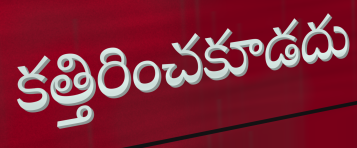
కత్తిరించకూడదు